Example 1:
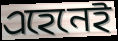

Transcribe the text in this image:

এহেনেই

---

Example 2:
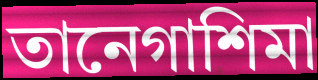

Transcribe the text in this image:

তানেগাশিমা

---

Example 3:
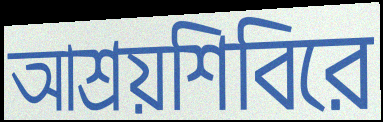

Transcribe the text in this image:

আশ্রয়শিবিরে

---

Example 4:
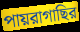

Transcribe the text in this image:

পায়রাগাছির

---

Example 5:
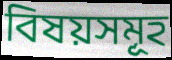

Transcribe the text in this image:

বিষয়সমূহ